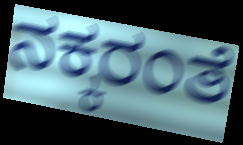
ನಕ್ಕರಂತೆ